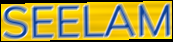
SEELAM